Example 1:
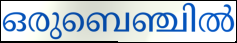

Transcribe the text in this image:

ഒരുബെഞ്ചിൽ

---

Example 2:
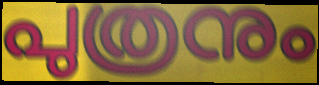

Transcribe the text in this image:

പുത്രനും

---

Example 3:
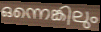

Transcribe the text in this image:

ഒന്നെങ്കിലും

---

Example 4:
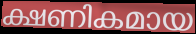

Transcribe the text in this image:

ക്ഷണികമായ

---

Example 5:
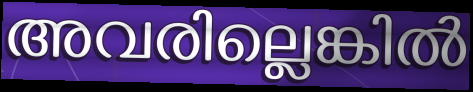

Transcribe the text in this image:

അവരില്ലെങ്കിൽ